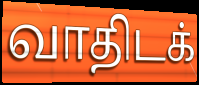
வாதிடக்